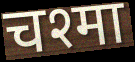
चश्मा